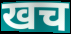
खच